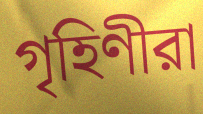
গৃহিণীরা